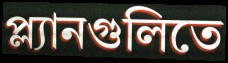
প্ল্যানগুলিতে